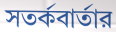
সতর্কবার্তার